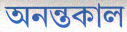
অনন্তকাল